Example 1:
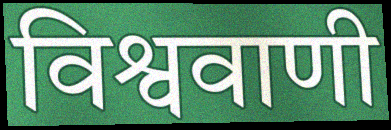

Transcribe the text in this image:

विश्ववाणी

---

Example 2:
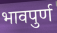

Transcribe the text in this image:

भावपुर्ण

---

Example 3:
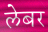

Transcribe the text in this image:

लेबर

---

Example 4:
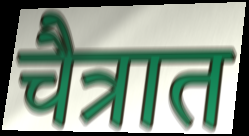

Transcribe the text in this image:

चैत्रात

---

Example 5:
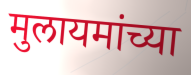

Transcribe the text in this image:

मुलायमांच्या